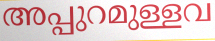
അപ്പുറമുള്ളവ